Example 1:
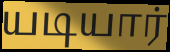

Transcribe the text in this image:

யடியார்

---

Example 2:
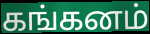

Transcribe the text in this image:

கங்கனம்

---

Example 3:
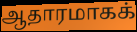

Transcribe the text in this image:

ஆதாரமாகக்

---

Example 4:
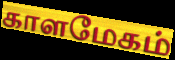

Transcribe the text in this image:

காளமேகம்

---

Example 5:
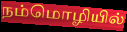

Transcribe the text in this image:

நம்மொழியில்